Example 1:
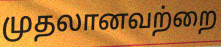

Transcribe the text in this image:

முதலானவற்றை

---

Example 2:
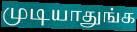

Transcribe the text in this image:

முடியாதுங்க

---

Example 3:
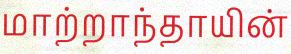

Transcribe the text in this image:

மாற்றாந்தாயின்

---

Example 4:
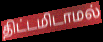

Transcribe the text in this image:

திட்டமிடாமல்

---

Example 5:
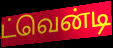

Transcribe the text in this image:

ட்வென்டி